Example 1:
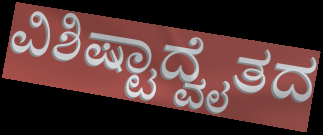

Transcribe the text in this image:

ವಿಶಿಷ್ಟಾದ್ವೈತದ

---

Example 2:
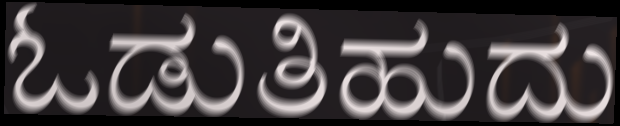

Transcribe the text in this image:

ಓಡುತಿಹುದು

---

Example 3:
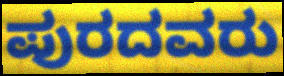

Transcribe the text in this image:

ಪುರದವರು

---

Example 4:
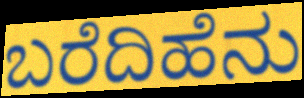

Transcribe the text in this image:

ಬರೆದಿಹೆನು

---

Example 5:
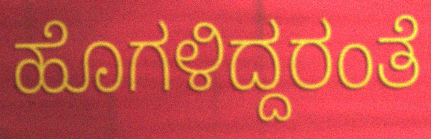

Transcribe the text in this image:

ಹೊಗಳಿದ್ದರಂತೆ